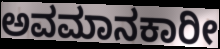
ಅವಮಾನಕಾರೀ